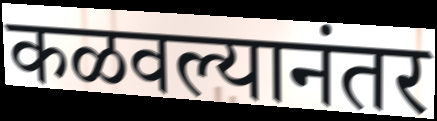
कळवल्यानंतर